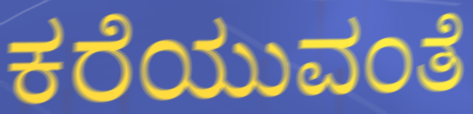
ಕರೆಯುವಂತೆ